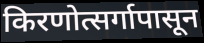
किरणोत्सर्गापासून